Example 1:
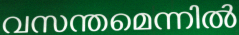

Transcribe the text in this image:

വസന്തമെന്നിൽ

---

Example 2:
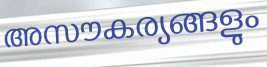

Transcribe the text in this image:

അസൗകര്യങ്ങളും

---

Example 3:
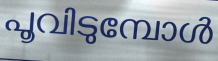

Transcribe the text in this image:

പൂവിടുമ്പോൾ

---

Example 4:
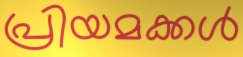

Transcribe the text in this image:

പ്രിയമക്കൾ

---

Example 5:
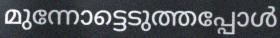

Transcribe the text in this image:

മുന്നോട്ടെടുത്തപ്പോൾ